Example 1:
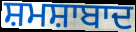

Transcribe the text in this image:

ਸ਼ਮਸ਼ਾਬਾਦ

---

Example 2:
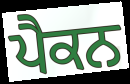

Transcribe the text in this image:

ਪੈਕਨ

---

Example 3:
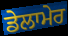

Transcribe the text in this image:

ਡੇਲਾਮੇਰ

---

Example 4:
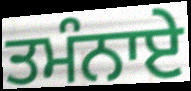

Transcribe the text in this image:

ਤਮੰਨਾਏ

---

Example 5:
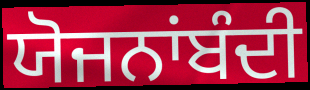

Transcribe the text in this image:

ਯੋਜਨਾਂਬੰਦੀ